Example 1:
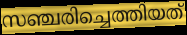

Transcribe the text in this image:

സഞ്ചരിച്ചെത്തിയത്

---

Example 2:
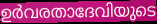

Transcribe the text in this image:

ഉർവരതാദേവിയുടെ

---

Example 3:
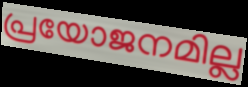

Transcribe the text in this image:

പ്രയോജനമില്ല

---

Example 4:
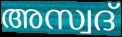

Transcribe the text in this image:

അസ്വദ്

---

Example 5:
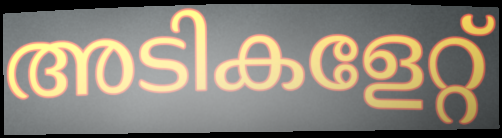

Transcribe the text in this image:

അടികളേറ്റ്